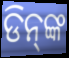
ଡିନ୍‍ଙ୍କ